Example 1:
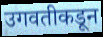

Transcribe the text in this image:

उगवतीकडून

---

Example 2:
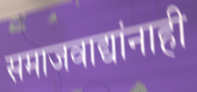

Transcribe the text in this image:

समाजवाद्यांनाही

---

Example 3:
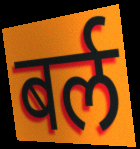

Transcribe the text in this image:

बर्ल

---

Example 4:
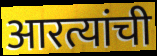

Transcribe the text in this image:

आरत्यांची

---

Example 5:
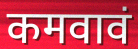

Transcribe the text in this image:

कमवावं